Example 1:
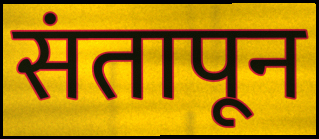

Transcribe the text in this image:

संतापून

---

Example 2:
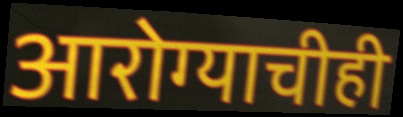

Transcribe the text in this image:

आरोग्याचीही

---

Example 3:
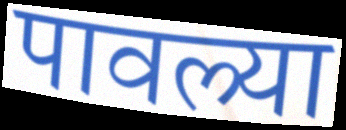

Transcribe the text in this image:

पावल्या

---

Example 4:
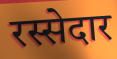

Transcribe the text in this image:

रस्सेदार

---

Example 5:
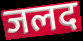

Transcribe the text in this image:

जलद